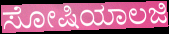
ಸೋಷಿಯಾಲಜಿ